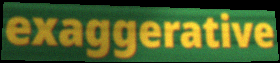
exaggerative